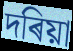
দৰিয়া